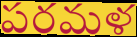
పరమళ